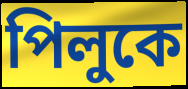
পিলুকে